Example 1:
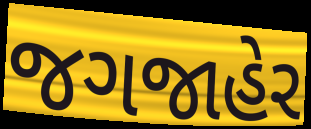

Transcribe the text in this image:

જગજાહેર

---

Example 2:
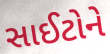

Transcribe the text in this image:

સાઈટોને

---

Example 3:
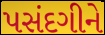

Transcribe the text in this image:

પસંદગીને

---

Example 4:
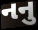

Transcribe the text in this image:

નનુ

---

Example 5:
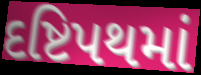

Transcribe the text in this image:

દષ્ટિપથમાં